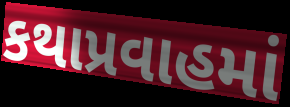
કથાપ્રવાહમાં